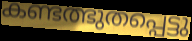
കണ്ടത്ഭുതപ്പെട്ടു